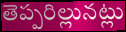
తెప్పరిల్లునట్లు